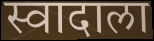
स्वादाला